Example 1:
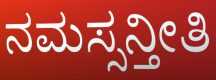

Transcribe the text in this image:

ನಮಸ್ಸನ್ತೀತಿ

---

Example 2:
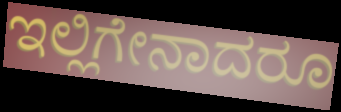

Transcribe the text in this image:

ಇಲ್ಲಿಗೇನಾದರೂ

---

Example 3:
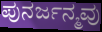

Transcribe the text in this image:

ಪುನರ್ಜನ್ಮವು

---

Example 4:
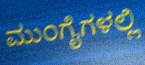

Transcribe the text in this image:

ಮುಂಗೈಗಳಲ್ಲಿ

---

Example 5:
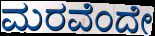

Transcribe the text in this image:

ಮರವೆಂದೇ